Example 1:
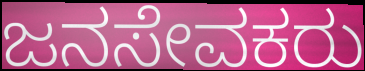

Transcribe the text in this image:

ಜನಸೇವಕರು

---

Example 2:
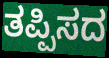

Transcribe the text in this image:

ತಪ್ಪಿಸದ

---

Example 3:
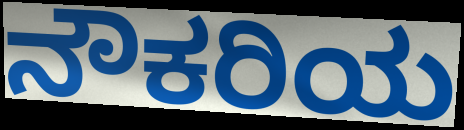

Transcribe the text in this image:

ನೌಕರಿಯ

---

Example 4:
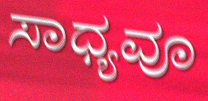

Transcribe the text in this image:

ಸಾಧ್ಯವೂ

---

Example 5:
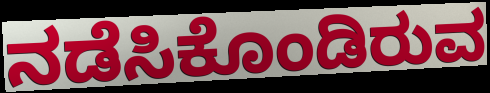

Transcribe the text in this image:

ನಡೆಸಿಕೊಂಡಿರುವ